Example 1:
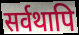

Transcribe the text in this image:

सर्वथापि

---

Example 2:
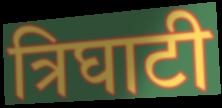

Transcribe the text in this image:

त्रिघाटी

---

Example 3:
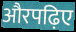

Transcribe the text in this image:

औरपढ़िए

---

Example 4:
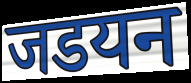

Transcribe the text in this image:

जडयन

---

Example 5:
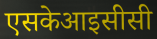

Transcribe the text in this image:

एसकेआइसीसी